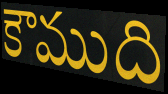
కౌముది